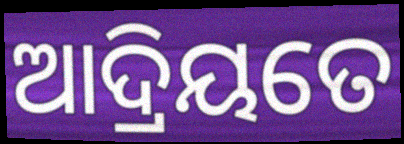
ଆଦ୍ରିୟତେ